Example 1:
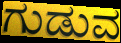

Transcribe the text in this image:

ಗುಡುವ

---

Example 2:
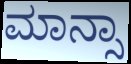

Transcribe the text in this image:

ಮಾನ್ಸಾ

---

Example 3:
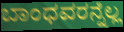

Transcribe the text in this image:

ಬಾಂಧವರನ್ನೆಲ್ಲ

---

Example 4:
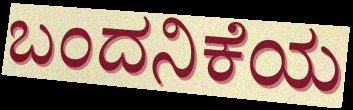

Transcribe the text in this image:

ಬಂದನಿಕೆಯ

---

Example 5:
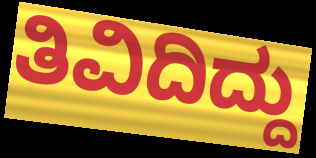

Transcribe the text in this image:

ತಿವಿದಿದ್ದು